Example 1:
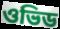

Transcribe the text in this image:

ওভিড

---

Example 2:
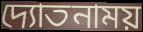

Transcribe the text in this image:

দ্যোতনাময়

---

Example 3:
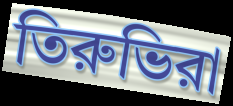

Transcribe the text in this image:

তিরুভিরা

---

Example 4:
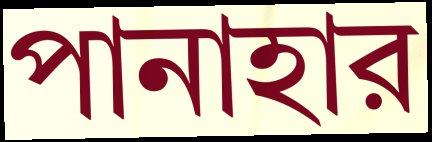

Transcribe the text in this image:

পানাহার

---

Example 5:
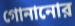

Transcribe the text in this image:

গোনানোর